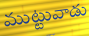
ముట్టువాడు